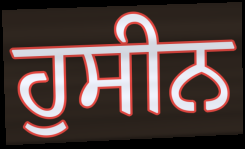
ਹੁਸੀਨ